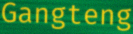
Gangteng